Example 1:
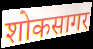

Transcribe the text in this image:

शोकसागर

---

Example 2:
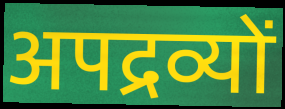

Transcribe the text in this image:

अपद्रव्यों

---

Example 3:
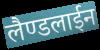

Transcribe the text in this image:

लैण्डलाईन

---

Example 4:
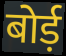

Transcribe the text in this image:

बोर्ड़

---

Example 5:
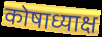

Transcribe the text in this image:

कोषाध्याक्ष